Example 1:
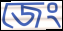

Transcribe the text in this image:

জেং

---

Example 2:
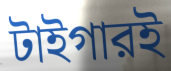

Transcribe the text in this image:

টাইগারই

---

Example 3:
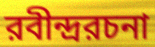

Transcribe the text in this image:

রবীন্দ্ররচনা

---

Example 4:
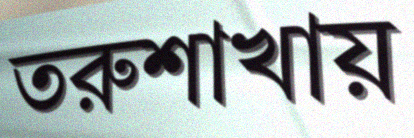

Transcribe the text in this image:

তরুশাখায়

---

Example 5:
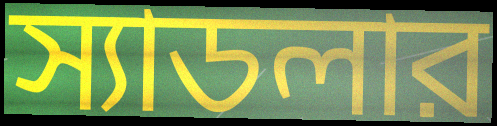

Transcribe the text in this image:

স্যাডলার